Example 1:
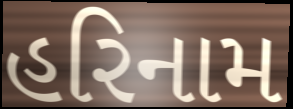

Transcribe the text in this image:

હરિનામ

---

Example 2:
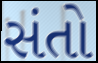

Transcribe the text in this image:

સંતો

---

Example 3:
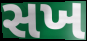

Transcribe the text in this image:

સખ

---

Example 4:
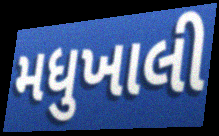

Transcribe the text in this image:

મધુખાલી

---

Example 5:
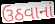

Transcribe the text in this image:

ઉઠવાનાં